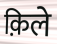
क़िले